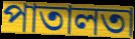
পাতালতা